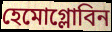
হেমোগ্লোবিন